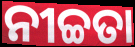
ନୀଚ୍ଚତା